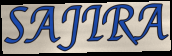
SAJIRA